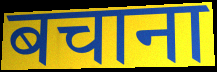
बचाना